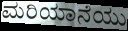
ಮರಿಯಾನೆಯು